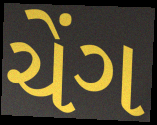
ચેંગ